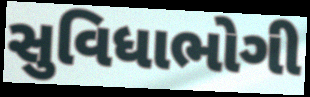
સુવિધાભોગી